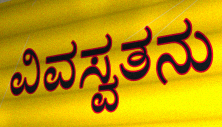
ವಿವಸ್ವತನು